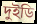
দুইডি